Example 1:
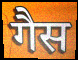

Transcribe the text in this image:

गैस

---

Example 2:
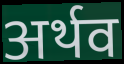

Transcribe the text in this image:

अर्थव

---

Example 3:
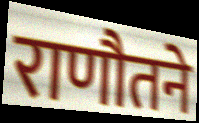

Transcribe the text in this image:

राणौतने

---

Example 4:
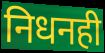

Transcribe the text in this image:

निधनही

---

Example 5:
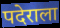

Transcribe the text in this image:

पदेराला